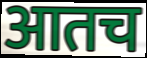
आतच